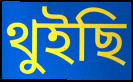
থুইছি